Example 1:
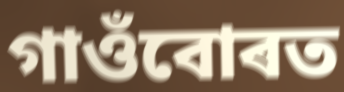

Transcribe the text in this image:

গাওঁবোৰত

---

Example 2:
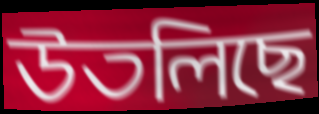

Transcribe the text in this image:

উতলিছে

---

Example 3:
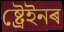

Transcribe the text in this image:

ষ্ট্ৰেইনৰ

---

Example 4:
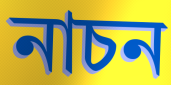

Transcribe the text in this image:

নাচন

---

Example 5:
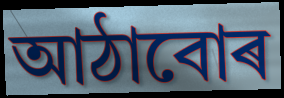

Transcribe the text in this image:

আঠাবোৰ